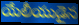
యేలీయుడైన